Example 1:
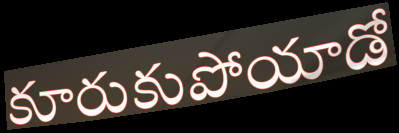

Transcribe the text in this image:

కూరుకుపోయాడో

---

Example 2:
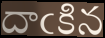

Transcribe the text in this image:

దాఁకిన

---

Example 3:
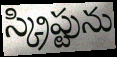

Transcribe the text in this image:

స్క్రిప్టును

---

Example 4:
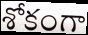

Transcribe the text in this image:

శోకంగా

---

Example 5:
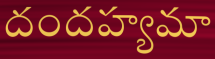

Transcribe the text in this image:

దందహ్యమా